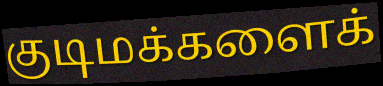
குடிமக்களைக்